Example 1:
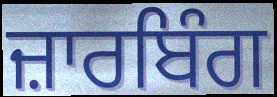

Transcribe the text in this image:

ਜ਼ਾਰਬਿੰਗ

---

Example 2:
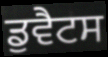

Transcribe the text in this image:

ਡੁਵੈਟਸ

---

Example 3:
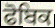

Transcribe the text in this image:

ਫੋਬਿਕ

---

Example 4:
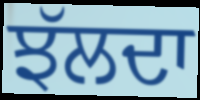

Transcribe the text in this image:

ਝੱਲਦਾ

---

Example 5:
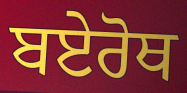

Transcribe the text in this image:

ਬਏਰੋਥ